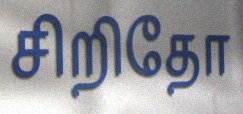
சிறிதோ